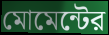
মোমেন্টের